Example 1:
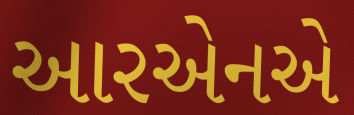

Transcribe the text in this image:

આરએનએ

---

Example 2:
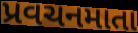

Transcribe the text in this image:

પ્રવચનમાતા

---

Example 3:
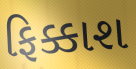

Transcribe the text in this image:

ફિક્કાશ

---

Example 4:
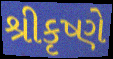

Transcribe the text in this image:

શ્રીકૃષ્ણે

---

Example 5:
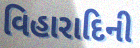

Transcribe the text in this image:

વિહારાદિની